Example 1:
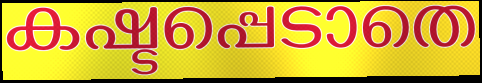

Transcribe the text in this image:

കഷ്ടപ്പെടാതെ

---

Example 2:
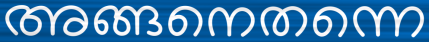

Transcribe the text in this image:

അങ്ങനെതന്നെ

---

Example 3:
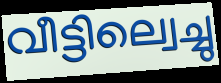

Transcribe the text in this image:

വീട്ടില്വെച്ചു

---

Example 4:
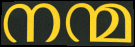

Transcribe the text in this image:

നന്മ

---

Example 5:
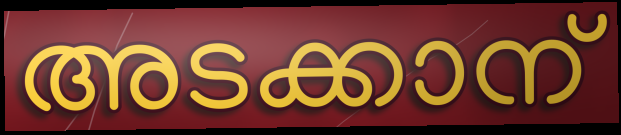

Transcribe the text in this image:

അടക്കാന്